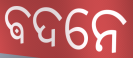
ଵଦନେ